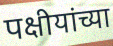
पक्षीयांच्या